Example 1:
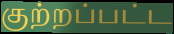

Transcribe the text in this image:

குற்றப்பட்ட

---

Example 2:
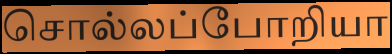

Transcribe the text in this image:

சொல்லப்போறியா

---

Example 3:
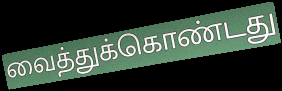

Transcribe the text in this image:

வைத்துக்கொண்டது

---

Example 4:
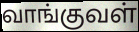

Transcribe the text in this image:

வாங்குவள்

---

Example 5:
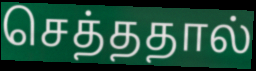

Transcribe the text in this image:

செத்ததால்